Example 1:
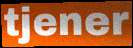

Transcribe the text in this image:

tjener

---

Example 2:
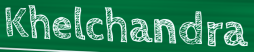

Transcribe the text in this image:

Khelchandra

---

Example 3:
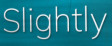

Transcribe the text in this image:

Slightly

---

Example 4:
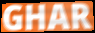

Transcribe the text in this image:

GHAR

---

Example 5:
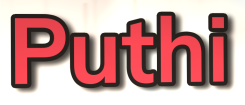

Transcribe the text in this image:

Puthi